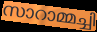
സാറാമ്മച്ചി